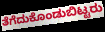
ತೆಗೆದುಕೊಂಡುಬಿಟ್ಟರು